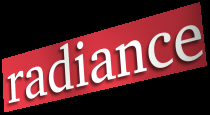
radiance